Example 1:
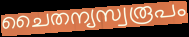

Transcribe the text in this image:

ചൈതന്യസ്വരൂപം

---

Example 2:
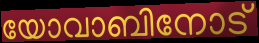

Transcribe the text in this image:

യോവാബിനോട്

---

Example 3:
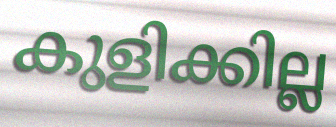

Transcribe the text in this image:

കുളിക്കില്ല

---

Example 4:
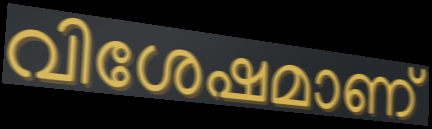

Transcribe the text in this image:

വിശേഷമാണ്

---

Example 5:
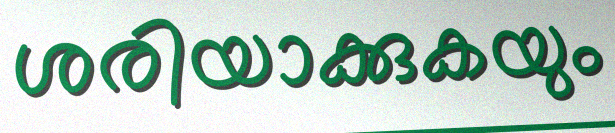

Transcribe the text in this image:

ശരിയാക്കുകയും